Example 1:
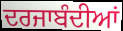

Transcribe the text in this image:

ਦਰਜਾਬੰਦੀਆਂ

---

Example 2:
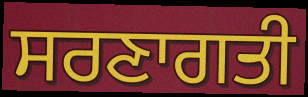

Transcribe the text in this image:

ਸਰਣਾਗਤੀ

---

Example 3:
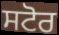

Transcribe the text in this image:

ਸਟੋਰ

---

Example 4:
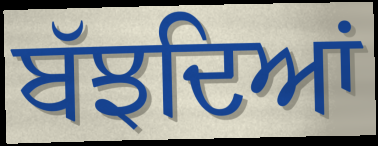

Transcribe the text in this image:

ਬੱਝਦਿਆਂ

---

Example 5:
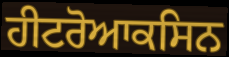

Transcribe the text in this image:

ਹੀਟਰੋਆਕਸਿਨ